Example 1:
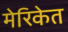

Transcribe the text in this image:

मेरिकेत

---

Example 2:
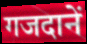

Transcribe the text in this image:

गजदानें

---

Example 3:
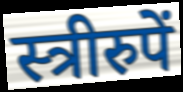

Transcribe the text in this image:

स्त्रीरुपें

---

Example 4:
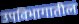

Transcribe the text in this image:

उपविभागातील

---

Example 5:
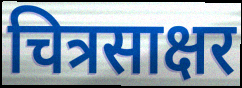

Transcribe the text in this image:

चित्रसाक्षर